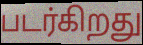
படர்கிறது